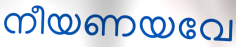
നീയണയവേ